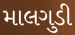
માલગુડી